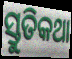
ସ୍ତୁତିକଥା